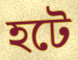
হটে